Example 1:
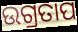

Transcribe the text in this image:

ଉଗ୍ରତାପ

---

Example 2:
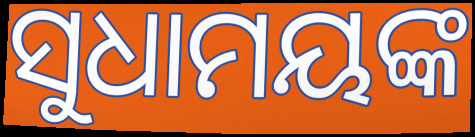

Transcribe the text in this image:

ସୁଧାମୟଙ୍କ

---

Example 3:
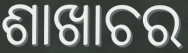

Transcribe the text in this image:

ଶାଖାଚର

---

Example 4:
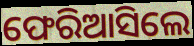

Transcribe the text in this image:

ଫେରିଆସିଲେ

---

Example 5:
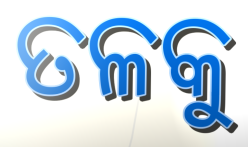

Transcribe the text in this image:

ତଳକୁ